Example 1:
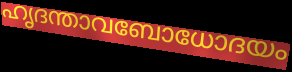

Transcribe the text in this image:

ഹൃദന്താവബോധോദയം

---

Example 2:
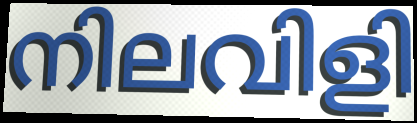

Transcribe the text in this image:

നിലവിളി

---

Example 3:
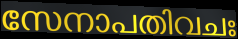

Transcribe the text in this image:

സേനാപതിവചഃ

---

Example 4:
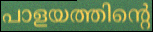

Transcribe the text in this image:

പാളയത്തിന്റെ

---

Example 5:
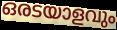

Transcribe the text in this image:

ഒരടയാളവും